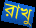
রাখু